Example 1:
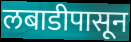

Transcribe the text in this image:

लबाडीपासून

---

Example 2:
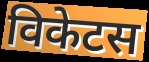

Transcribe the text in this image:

विकेटस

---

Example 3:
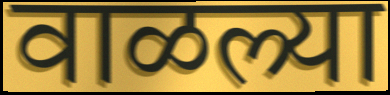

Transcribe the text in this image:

वाळल्या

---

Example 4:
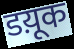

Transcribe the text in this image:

डय़ूक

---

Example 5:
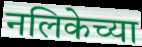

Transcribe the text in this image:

नलिकेच्या